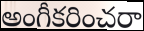
అంగీకరించరా